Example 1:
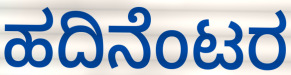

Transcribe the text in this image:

ಹದಿನೆಂಟರ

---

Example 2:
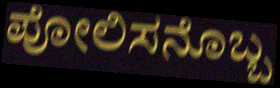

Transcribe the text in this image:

ಪೋಲಿಸನೊಬ್ಬ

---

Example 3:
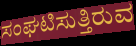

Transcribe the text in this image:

ಸಂಘಟಿಸುತ್ತಿರುವ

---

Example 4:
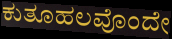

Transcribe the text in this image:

ಕುತೂಹಲವೊಂದೇ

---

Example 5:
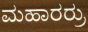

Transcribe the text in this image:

ಮಹಾರರ್ರು